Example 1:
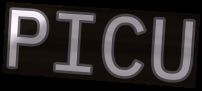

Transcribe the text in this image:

PICU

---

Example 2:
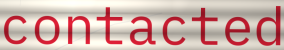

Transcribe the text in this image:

contacted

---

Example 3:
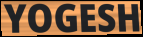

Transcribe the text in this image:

YOGESH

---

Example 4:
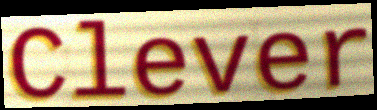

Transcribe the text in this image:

Clever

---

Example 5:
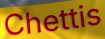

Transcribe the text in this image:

Chettis